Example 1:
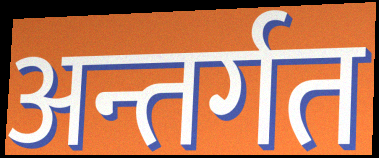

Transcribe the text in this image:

अन्‍तर्गत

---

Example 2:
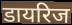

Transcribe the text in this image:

डायरिज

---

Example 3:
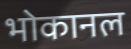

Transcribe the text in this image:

भोकानल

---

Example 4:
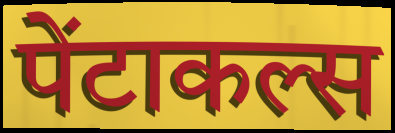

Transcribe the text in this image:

पेंटाकल्स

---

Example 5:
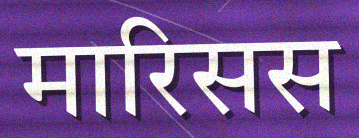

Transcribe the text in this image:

मारिसस